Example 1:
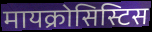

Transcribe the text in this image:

मायक्रोसिस्टिस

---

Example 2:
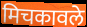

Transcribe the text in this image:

मिचकावले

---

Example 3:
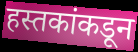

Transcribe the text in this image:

हस्तकांकडून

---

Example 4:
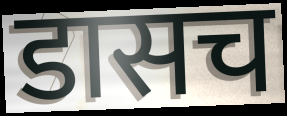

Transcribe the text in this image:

डासच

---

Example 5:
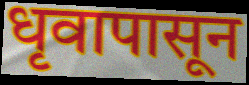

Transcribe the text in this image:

धृवापासून